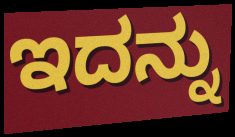
ಇದನ್ನು